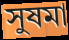
সুষমা